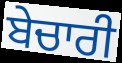
ਬੇਚਾਰੀ